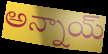
అన్నాయ్